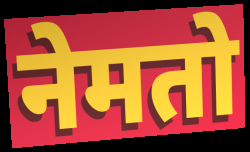
नेमतो